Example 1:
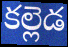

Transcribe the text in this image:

కల్లెడ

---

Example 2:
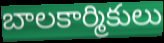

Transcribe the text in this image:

బాలకార్మికులు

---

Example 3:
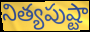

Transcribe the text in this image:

నిత్యపుష్టా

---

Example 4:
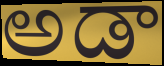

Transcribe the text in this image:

అడా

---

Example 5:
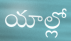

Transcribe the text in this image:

యాల్లో